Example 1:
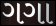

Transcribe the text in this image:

ગગા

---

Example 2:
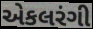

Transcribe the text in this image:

એકલરંગી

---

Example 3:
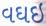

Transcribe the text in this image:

વઘઇ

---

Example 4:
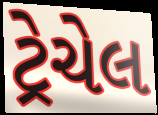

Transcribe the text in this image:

ટ્રેચેલ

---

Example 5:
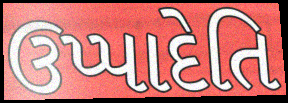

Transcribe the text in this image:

ઉપ્પાદેતિ